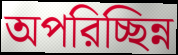
অপরিচ্ছিন্ন